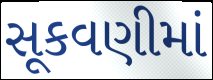
સૂકવણીમાં